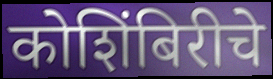
कोशिंबिरीचे